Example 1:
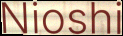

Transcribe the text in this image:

Nioshi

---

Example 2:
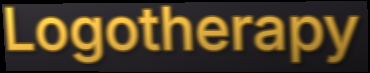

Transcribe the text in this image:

Logotherapy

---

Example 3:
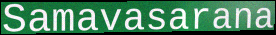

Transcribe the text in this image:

Samavasarana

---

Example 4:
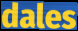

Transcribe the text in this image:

dales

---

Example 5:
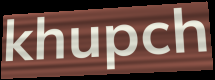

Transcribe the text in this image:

khupch